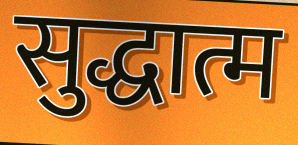
सुद्धात्म